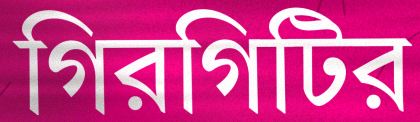
গিরগিটির